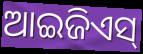
ଆଇଜିଏସ୍